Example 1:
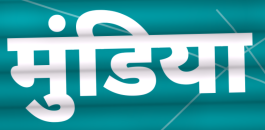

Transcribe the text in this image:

मुंडिया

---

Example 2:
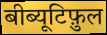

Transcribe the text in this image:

बीब्यूटिफ़ुल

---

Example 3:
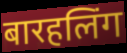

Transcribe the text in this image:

बारहलिंग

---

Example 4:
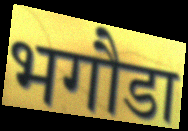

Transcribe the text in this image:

भगौडा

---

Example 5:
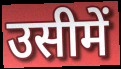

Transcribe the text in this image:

उसीमें